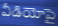
వీడియోపై